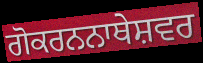
ਗੋਕਰਨਨਾਥੇਸ਼ਵਰ